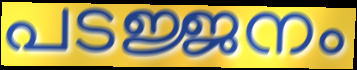
പടജ്ജനം